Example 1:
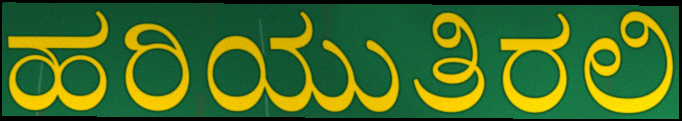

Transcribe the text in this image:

ಹರಿಯುತಿರಲಿ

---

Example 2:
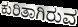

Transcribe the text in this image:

ಕುರಿತಾಗಿರುವ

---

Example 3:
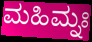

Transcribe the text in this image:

ಮಹಿಮ್ನಃ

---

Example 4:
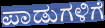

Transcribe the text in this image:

ಪಾಡುಗಳಿಗೆ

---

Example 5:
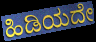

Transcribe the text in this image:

ಹಿಡಿಯದೇ